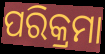
ପରିକ୍ରମା